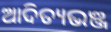
ଆଦିତ୍ୟଭଞ୍ଜ